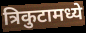
त्रिकुटामध्ये